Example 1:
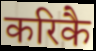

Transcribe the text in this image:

करिकै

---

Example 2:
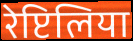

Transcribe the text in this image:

रेप्टिलिया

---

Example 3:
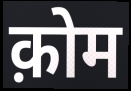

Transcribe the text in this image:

क़ोम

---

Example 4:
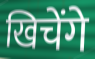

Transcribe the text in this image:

खिचेंगे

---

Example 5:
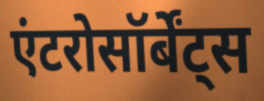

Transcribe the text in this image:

एंटरोसॉर्बेंट्स